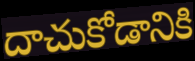
దాచుకోడానికి